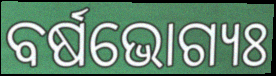
ବର୍ଷଭୋଗ୍ୟଃ